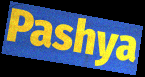
Pashya